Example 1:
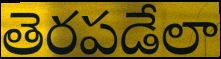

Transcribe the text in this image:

తెరపడేలా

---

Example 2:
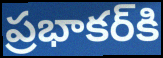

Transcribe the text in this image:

ప్రభాకర్‌కి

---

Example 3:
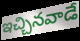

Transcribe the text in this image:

ఇచ్చినవాడే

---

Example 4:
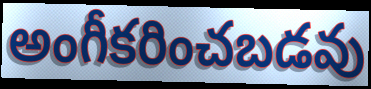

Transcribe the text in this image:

అంగీకరించబడవు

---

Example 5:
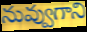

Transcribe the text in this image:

నువ్వుగాని